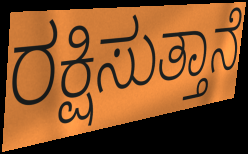
ರಕ್ಷಿಸುತ್ತಾನೆ